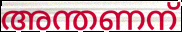
അന്തണന്